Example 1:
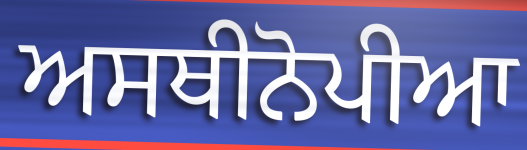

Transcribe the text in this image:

ਅਸਥੀਨੋਪੀਆ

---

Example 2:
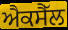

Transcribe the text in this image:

ਐਕਸੈੱਲ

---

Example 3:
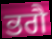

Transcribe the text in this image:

ਭਗੈ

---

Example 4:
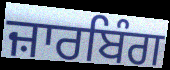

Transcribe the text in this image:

ਜ਼ਾਰਬਿੰਗ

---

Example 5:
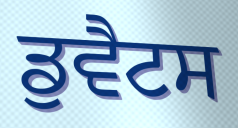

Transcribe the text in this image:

ਡੁਵੈਟਸ